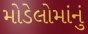
મોડેલોમાંનું